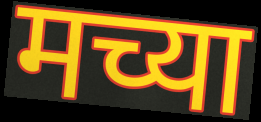
मच्या